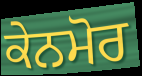
ਕੇਨਮੋਰ